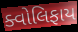
ક્વોલિફાય